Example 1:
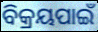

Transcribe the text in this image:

ବିକ୍ରୟପାଇଁ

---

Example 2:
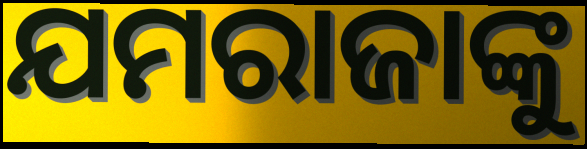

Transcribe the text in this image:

ଯମରାଜାଙ୍କୁ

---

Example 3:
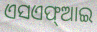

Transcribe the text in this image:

ଏସଏଫ୍ଆଇ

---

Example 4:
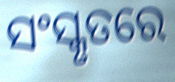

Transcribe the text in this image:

ସଂସ୍କୃତରେ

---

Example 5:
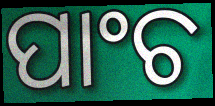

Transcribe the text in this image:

ପାଂଚ